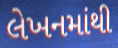
લેખનમાંથી